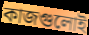
কাজগুলোই